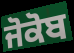
ਜੋਕੋਬ